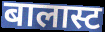
बालास्ट